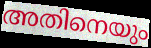
അതിനെയും